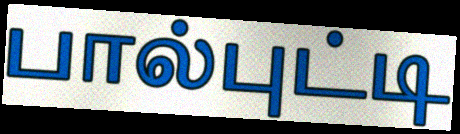
பால்புட்டி